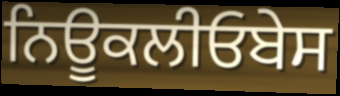
ਨਿਊਕਲੀਓਬੇਸ